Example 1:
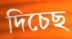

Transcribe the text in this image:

দিচেছ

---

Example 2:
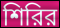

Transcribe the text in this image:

শিরির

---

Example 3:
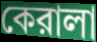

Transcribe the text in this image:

কেরালা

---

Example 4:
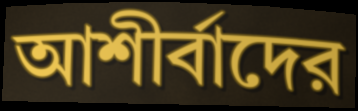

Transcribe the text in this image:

আশীর্বাদের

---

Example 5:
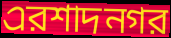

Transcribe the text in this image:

এরশাদনগর